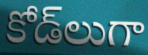
కోడ్‌లుగా